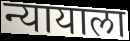
न्यायाला